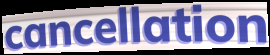
cancellation